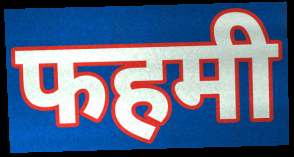
फहमी